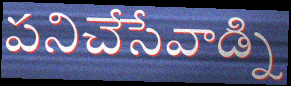
పనిచేసేవాడ్ని